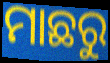
ମାଛରୁ